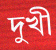
দুখী